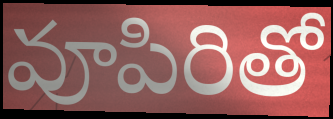
వూపిరితో